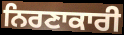
ਨਿਰਣਾਕਾਰੀ